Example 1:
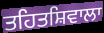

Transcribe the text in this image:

ਤਹਿਤਸ਼ਿਵਾਲਾ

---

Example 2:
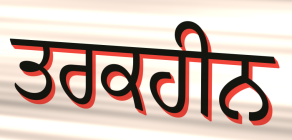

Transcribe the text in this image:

ਤਰਕਹੀਨ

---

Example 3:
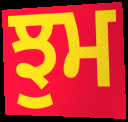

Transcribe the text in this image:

ਝੁਮ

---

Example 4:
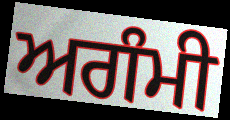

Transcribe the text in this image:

ਅਗੰਮੀ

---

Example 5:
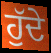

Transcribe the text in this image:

ਹੁੱਦੇ